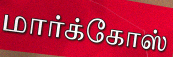
மார்க்கோஸ்